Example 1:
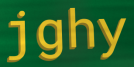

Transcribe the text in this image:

jghy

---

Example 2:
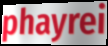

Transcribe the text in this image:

phayrei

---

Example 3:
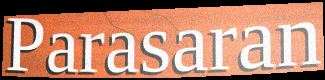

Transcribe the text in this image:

Parasaran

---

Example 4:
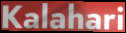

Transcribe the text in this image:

Kalahari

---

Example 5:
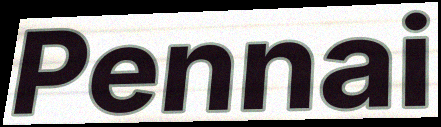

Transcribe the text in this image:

Pennai